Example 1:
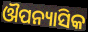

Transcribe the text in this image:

ଔପନ୍ୟାସିକ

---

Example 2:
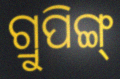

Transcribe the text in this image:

ଗ୍ରୁପିଙ୍ଗ୍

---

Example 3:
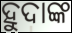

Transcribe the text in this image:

ହୁଦାଙ୍କ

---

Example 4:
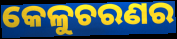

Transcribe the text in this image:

କେଳୁଚରଣର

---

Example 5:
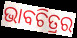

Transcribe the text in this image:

ଭାବଚିତ୍ରର